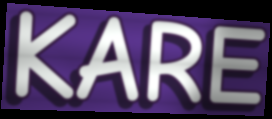
KARE